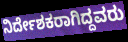
ನಿರ್ದೇಶಕರಾಗಿದ್ದವರು